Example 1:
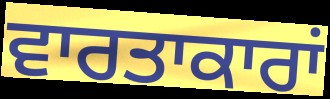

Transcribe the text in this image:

ਵਾਰਤਾਕਾਰਾਂ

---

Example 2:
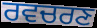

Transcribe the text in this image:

ਰਵਚਰਣ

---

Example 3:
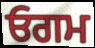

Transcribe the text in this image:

ਓਗਮ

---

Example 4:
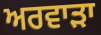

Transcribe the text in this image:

ਅਰਵਾੜਾ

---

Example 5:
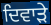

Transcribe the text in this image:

ਦਿਵਾੜੇ